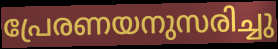
പ്രേരണയനുസരിച്ചു